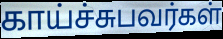
காய்ச்சுபவர்கள்